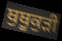
ਥੁਥੂਕੁੜੀ